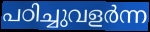
പഠിച്ചുവളർന്ന